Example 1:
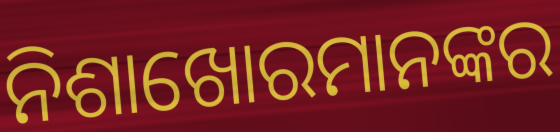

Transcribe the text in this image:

ନିଶାଖୋରମାନଙ୍କର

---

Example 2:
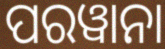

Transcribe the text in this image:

ପରୱାନା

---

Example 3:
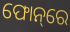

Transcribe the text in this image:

ଫୋନ୍‌ରେ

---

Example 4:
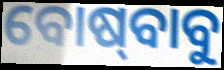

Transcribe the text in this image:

ବୋଷ୍‍ବାବୁ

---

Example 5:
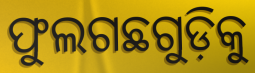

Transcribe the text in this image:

ଫୁଲଗଛଗୁଡ଼ିକୁ